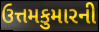
ઉત્તમકુમારની